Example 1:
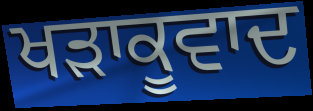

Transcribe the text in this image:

ਖੜਾਕੂਵਾਦ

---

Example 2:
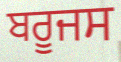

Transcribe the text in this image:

ਬਰੂਜਸ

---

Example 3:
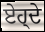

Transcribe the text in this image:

ਏਹ੍ਦੇ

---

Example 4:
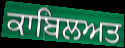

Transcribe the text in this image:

ਕਾਬਿਲਅਤ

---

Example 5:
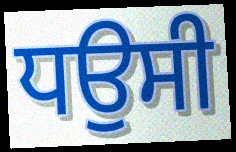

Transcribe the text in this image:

ਧਉਸੀ